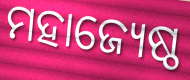
ମହାଜ୍ୟେଷ୍ଠ